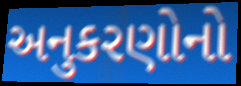
અનુકરણોનો